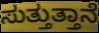
ಸುತ್ತುತ್ತಾನೆ